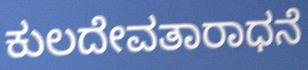
ಕುಲದೇವತಾರಾಧನೆ